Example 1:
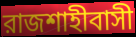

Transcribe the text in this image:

রাজশাহীবাসী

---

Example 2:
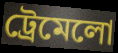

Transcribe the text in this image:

ট্রেমেলো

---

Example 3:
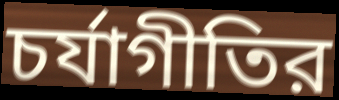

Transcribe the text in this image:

চর্যাগীতির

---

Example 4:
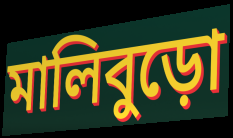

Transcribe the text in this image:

মালিবুড়ো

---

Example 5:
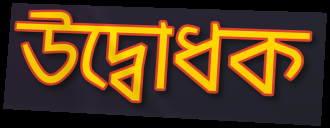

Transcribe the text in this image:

উদ্বোধক